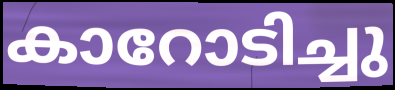
കാറോടിച്ചു